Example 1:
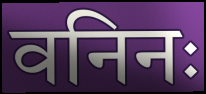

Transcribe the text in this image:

वनिनः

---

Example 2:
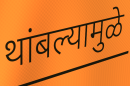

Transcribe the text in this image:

थांबल्यामुळे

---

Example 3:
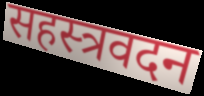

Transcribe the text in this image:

सहस्त्रवदन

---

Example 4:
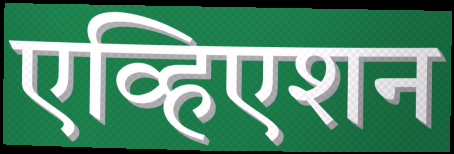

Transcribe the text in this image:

एव्हिएशन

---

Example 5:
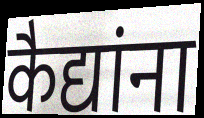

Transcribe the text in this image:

कैद्यांना